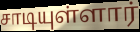
சாடியுள்ளார்